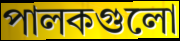
পালকগুলো